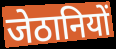
जेठानियों